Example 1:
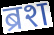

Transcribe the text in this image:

ब्रश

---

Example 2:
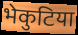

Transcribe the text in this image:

भेकुटिया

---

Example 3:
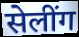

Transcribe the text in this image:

सेलींग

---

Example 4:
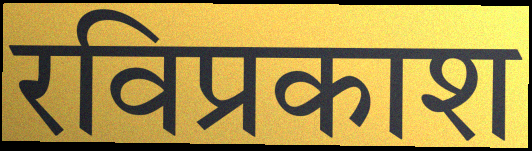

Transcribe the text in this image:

रविप्रकाश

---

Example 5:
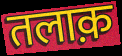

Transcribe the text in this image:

तलाक़